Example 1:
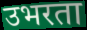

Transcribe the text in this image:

उभरता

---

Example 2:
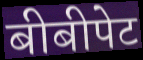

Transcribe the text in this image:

बीबीपेट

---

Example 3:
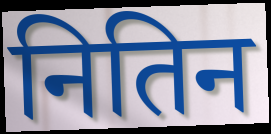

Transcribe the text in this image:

नितिन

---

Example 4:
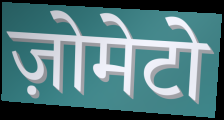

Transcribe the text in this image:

ज़ोमेटो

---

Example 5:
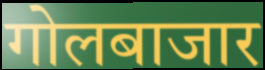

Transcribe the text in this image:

गोलबाजार